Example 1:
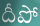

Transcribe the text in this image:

దీపో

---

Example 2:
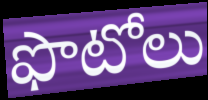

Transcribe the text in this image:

ఫొటోలు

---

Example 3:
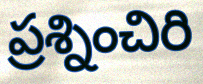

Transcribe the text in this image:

ప్రశ్నించిరి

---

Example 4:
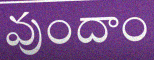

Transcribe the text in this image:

వుందాం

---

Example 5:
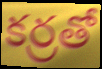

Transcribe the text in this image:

కర్రతో